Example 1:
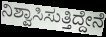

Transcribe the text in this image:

ನಿಶ್ವಾಸಿಸುತ್ತಿದ್ದೇನೆ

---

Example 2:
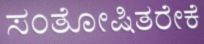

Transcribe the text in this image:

ಸಂತೋಷಿತರೇಕೆ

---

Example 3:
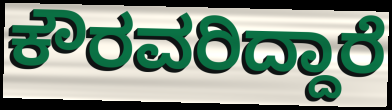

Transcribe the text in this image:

ಕೌರವರಿದ್ದಾರೆ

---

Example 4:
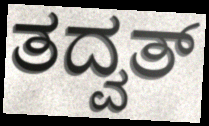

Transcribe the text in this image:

ತದ್ವತ್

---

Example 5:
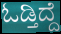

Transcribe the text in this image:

ಓಡ್ತಿದ್ದೆ